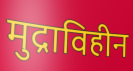
मुद्राविहीन